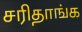
சரிதாங்க